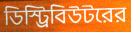
ডিস্ট্রিবিউটরের